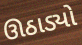
ઊઠાડ્યો